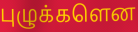
புழுக்களென